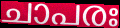
ചാപരഃ